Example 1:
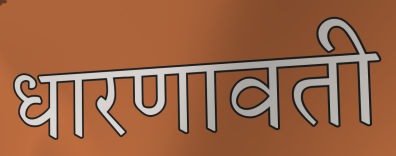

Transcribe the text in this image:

धारणावती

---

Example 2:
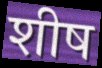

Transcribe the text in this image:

शीष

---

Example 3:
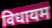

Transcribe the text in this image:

विधायम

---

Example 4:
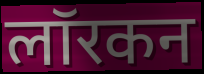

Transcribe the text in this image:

लॉरकन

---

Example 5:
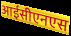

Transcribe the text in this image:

आईसीएनएस